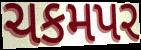
ચકમપર